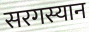
सरगस्यान